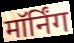
मॉर्निंग